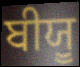
ਬੀਯੂ